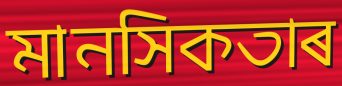
মানসিকতাৰ